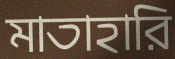
মাতাহারি